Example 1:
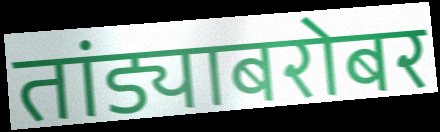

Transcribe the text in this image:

तांड्याबरोबर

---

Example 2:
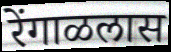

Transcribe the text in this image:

रेंगाळलास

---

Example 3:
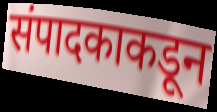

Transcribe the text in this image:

संपादकाकडून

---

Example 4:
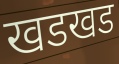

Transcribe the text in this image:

खडखड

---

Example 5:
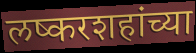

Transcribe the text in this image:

लष्करशहांच्या